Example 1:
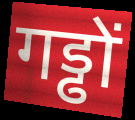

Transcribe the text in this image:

गड्ढों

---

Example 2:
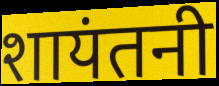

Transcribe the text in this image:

शायंतनी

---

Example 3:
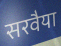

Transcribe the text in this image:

सरवैया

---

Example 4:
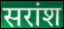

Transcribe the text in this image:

सरांश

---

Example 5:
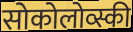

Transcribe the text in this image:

सोकोलोव्स्की